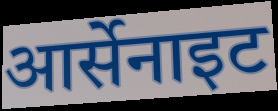
आर्सेनाइट